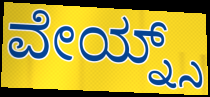
ವೇಯ್ನ್ಸ್